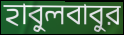
হাবুলবাবুর